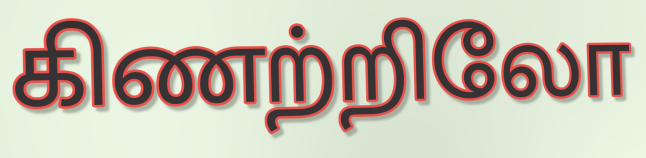
கிணற்றிலோ